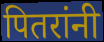
पितरांनी